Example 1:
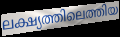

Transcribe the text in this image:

ലക്ഷ്യത്തിലെത്തിയ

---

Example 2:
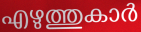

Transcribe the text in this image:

എഴുത്തുകാർ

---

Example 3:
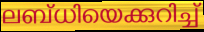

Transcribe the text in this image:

ലബ്ധിയെക്കുറിച്ച്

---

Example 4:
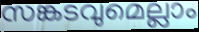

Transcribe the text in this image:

സങ്കടവുമെല്ലാം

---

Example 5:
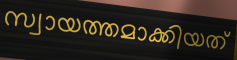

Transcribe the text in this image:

സ്വായത്തമാക്കിയത്